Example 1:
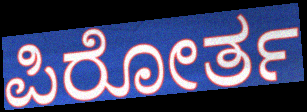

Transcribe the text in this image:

ಪಿರೋರ್ತ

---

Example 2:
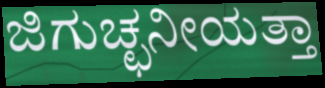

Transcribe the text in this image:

ಜಿಗುಚ್ಛನೀಯತ್ತಾ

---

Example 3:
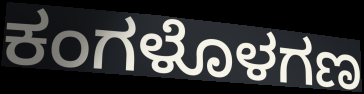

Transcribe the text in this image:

ಕಂಗಳೊಳಗಣ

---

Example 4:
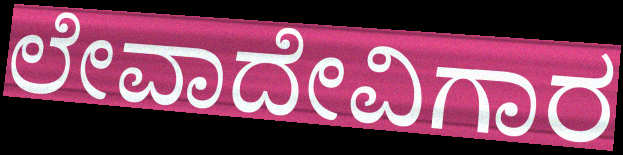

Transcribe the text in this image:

ಲೇವಾದೇವಿಗಾರ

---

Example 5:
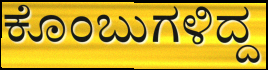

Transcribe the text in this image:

ಕೊಂಬುಗಳಿದ್ದ